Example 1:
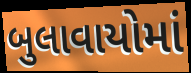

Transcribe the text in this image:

બુલાવાયોમાં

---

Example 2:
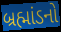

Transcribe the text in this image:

બ્રહ્માંડનો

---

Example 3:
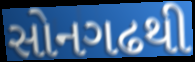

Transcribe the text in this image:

સોનગઢથી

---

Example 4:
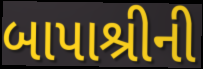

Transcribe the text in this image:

બાપાશ્રીની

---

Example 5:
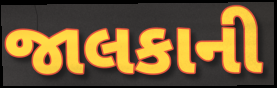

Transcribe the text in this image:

જાલકાની